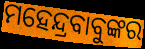
ମହେନ୍ଦ୍ରବାବୁଙ୍କର